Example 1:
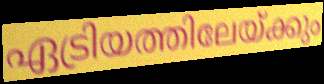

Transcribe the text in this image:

ഏട്രിയത്തിലേയ്ക്കും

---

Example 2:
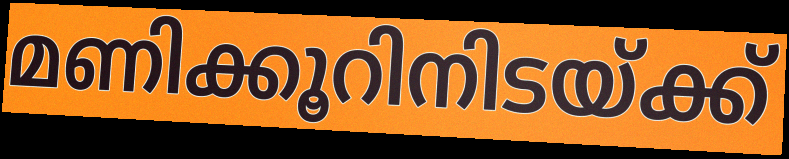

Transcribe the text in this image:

മണിക്കൂറിനിടയ്ക്ക്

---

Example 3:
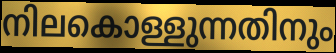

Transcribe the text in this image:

നിലകൊള്ളുന്നതിനും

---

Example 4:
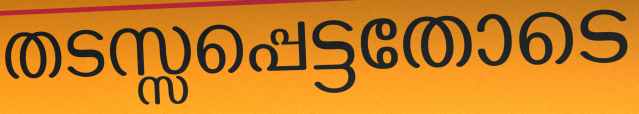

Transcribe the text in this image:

തടസ്സപ്പെട്ടതോടെ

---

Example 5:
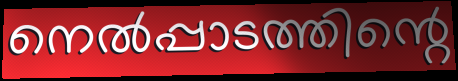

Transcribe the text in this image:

നെൽപ്പാടത്തിന്റെ